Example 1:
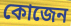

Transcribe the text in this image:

কোজেন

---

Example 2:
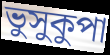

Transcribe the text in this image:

ভুসুকুপা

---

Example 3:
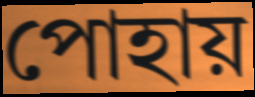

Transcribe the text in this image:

পোহায়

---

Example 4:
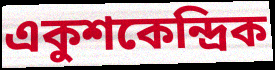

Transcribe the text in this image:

একুশকেন্দ্রিক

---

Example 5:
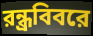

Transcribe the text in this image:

রন্ধ্রবিবরে